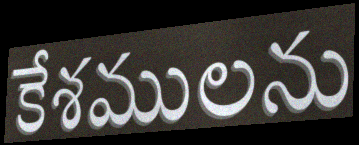
కేశములను